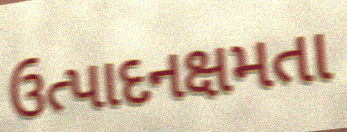
ઉત્પાદનક્ષમતા